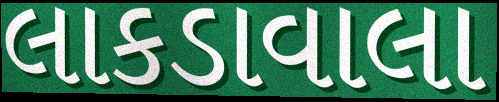
લાકડાવાલા